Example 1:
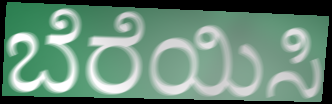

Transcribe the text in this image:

ಬೆರೆಯಿಸಿ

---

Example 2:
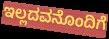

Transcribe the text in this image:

ಇಲ್ಲದವನೊಂದಿಗೆ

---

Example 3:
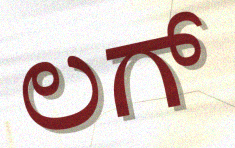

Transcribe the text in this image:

ಲಗ್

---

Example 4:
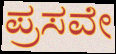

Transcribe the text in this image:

ಪ್ರಸವೇ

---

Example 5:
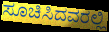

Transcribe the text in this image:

ಸೂಚಿಸಿದವರಲ್ಲಿ